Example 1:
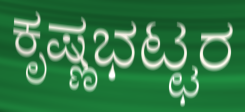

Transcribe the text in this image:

ಕೃಷ್ಣಭಟ್ಟರ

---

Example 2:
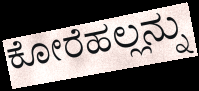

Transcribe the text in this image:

ಕೋರೆಹಲ್ಲನ್ನು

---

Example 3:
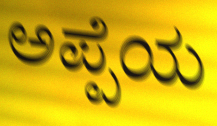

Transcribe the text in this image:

ಅಪ್ಪೆಯ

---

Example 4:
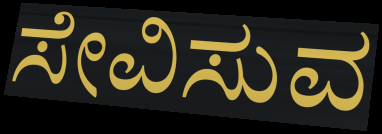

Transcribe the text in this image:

ಸೇವಿಸುವ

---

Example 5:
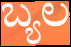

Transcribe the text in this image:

ಬ್ಯಲ